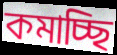
কমাচ্ছি